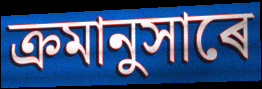
ক্ৰমানুসাৰে